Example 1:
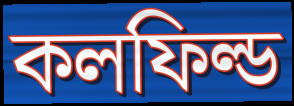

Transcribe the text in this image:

কলফিল্ড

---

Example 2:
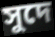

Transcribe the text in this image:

সুদে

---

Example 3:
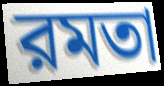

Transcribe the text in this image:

রমতা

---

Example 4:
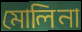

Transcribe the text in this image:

মোলিনা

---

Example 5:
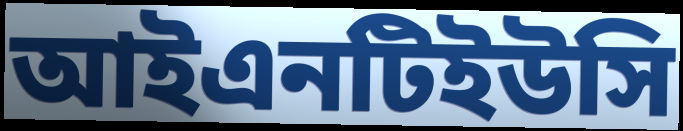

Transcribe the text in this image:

আইএনটিইউসি